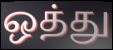
ஒத்து